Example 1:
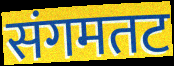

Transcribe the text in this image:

संगमतट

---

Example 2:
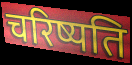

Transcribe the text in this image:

चरिष्यति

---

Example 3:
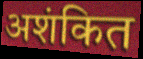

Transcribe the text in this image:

अशंकित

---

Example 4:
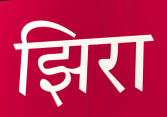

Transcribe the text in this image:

झिरा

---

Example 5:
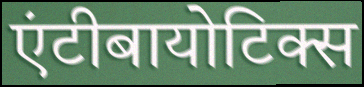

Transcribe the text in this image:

एंटीबायोटिक्स